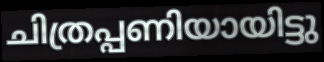
ചിത്രപ്പണിയായിട്ടു